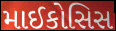
માઈકોસિસ